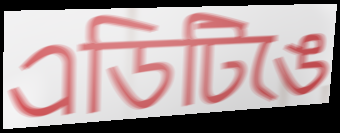
এডিটিঙে